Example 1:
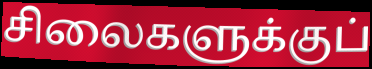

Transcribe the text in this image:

சிலைகளுக்குப்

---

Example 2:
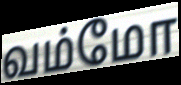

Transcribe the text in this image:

வம்மோ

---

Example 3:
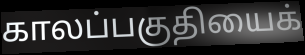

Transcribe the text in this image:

காலப்பகுதியைக்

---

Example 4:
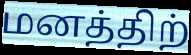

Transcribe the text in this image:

மனத்திற்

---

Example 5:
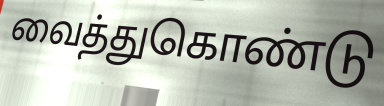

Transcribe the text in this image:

வைத்துகொண்டு